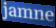
jamne